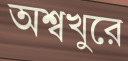
অশ্বখুরে